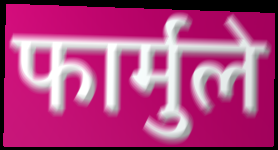
फार्मुले